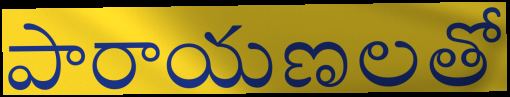
పారాయణలతో